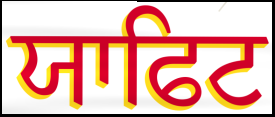
ਯਾਫਿਟ